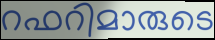
റഫറിമാരുടെ